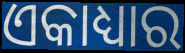
ଏକାଧ୍ୟାର